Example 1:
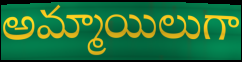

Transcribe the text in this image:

అమ్మాయిలుగా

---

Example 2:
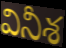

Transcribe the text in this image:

వినీశ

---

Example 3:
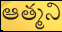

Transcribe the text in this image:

ఆత్మని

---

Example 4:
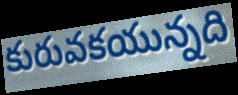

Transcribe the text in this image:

కురువకయున్నది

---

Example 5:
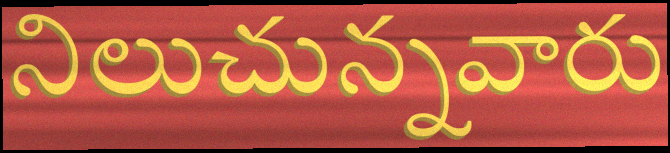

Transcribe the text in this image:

నిలుచున్నవారు